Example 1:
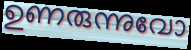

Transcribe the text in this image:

ഉണരുന്നുവോ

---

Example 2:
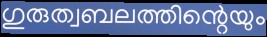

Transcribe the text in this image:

ഗുരുത്വബലത്തിന്റെയും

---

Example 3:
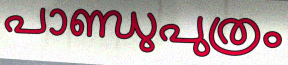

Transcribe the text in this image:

പാണ്ഡുപുത്രം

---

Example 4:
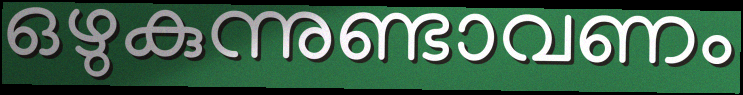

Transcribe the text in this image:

ഒഴുകുന്നുണ്ടാവണം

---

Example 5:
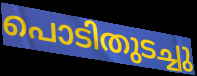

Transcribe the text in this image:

പൊടിതുടച്ചു